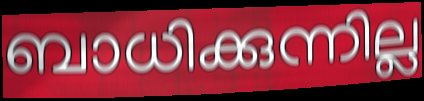
ബാധിക്കുന്നില്ല